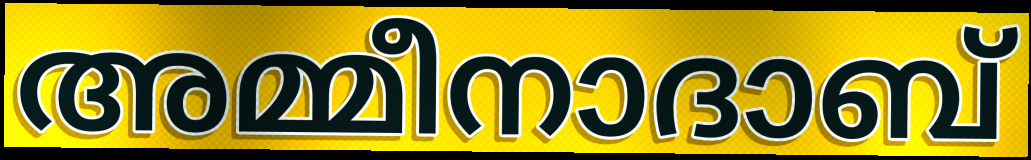
അമ്മീനാദാബ്